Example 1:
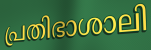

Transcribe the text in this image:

പ്രതിഭാശാലി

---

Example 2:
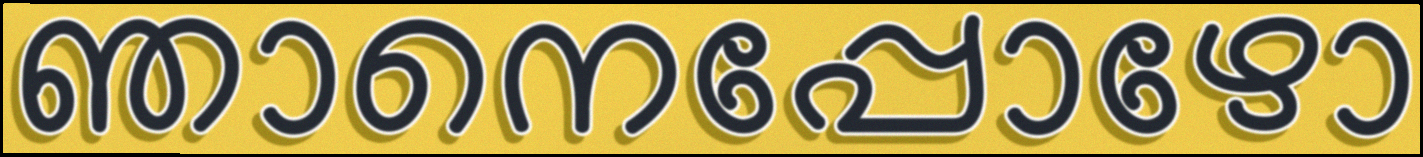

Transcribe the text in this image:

ഞാനെപ്പോഴോ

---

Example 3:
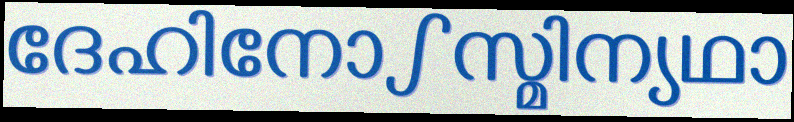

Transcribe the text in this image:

ദേഹിനോഽസ്മിന്യഥാ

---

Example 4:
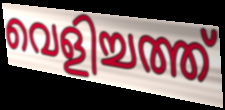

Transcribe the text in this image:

വെളിച്ചത്ത്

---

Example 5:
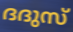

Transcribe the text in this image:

ദദുസ്